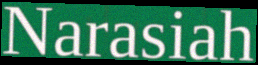
Narasiah